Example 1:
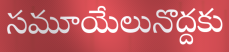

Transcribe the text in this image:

సమూయేలునొద్దకు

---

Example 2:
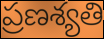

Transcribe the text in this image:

ప్రణశ్యతి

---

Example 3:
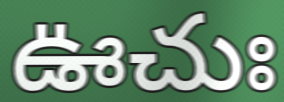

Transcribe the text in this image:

ఊచుః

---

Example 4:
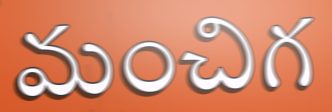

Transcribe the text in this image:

మంచిగ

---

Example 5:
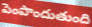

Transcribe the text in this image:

పెంపొందుతుంది